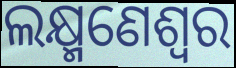
ଲକ୍ଷ୍ମଣେଶ୍ୱର